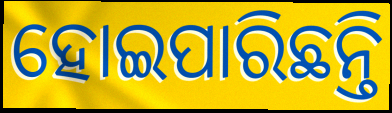
ହୋଇପାରିଛନ୍ତି